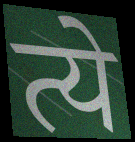
त्ये